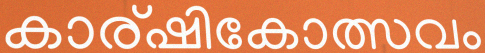
കാര്ഷികോത്സവം